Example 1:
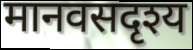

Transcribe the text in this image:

मानवसदृश्य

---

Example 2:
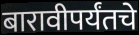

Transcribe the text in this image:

बारावीपर्यंतचे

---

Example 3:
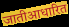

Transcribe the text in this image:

जातीआधारित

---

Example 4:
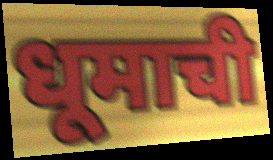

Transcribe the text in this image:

धूमाची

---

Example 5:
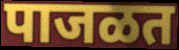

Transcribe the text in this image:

पाजळत